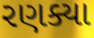
રણક્યા